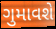
ગુમાવશે